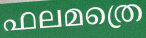
ഫലമത്രെ